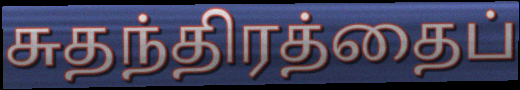
சுதந்திரத்தைப்